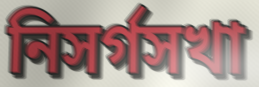
নিসর্গসখা